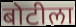
बोटीला